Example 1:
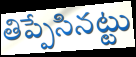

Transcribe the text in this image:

తిప్పేసినట్టు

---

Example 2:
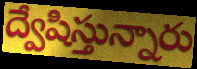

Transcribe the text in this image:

ద్వేషిస్తున్నారు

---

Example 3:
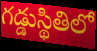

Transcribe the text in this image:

గడ్డుస్థితిలో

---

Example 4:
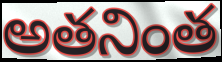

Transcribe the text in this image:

అతనింత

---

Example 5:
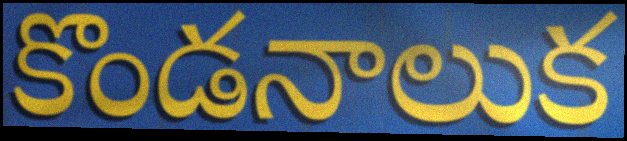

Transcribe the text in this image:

కొండనాలుక